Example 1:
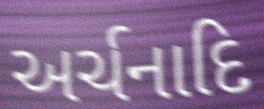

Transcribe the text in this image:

અર્ચનાદિ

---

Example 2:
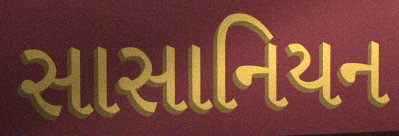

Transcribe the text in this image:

સાસાનિયન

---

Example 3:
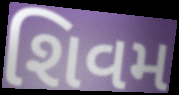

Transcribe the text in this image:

શિવમ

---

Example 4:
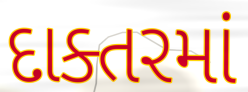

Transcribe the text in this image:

દાક્તરમાં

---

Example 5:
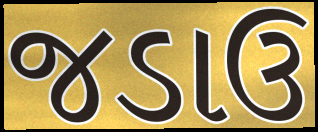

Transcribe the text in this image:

જડાઉ